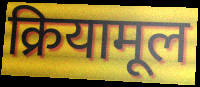
क्रियामूल